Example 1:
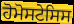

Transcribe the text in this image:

ਹੋਮੋਸਟੇਸਿਸ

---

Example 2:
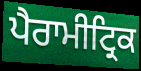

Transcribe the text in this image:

ਪੈਰਾਮੀਟ੍ਰਿਕ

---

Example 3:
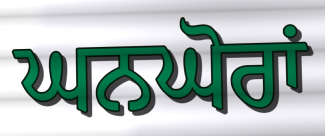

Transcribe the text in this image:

ਘਨਘੋਰਾਂ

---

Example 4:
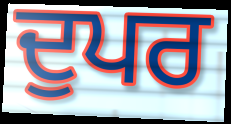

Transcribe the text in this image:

ਦੁਪਰ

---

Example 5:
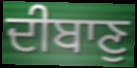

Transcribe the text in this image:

ਦੀਬਾਣੁ